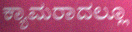
ಕ್ಯಾಮರಾದಲ್ಲೂ